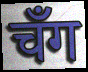
चँग